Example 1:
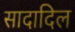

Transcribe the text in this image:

सादादिल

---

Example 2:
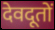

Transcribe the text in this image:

देवदूतों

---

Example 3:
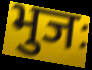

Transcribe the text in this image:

भुजः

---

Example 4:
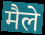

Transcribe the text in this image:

मैले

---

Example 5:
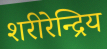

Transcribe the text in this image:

शरीरेन्द्रिय